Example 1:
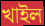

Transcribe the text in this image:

খাইল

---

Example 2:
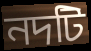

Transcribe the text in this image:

নদটি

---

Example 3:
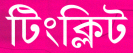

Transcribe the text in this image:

টিংক্লিট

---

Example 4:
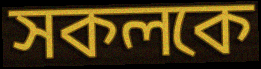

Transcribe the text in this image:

সকলকে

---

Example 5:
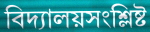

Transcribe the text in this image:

বিদ্যালয়সংশ্লিষ্ট